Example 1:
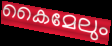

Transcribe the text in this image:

കൈമേലും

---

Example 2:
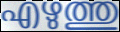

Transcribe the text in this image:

എഴുത്തു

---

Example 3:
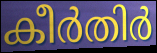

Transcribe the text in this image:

കീർതിർ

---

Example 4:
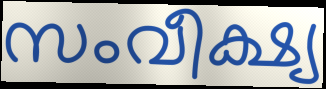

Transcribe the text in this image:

സംവീക്ഷ്യ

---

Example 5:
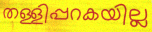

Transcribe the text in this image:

തള്ളിപ്പറകയില്ല